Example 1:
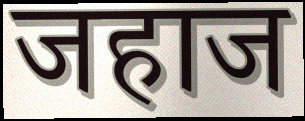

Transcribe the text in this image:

जहाज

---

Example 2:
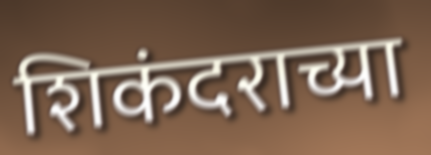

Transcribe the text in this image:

शिकंदराच्या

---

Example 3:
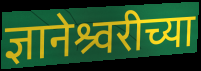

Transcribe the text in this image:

ज्ञानेश्र्वरीच्या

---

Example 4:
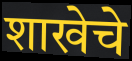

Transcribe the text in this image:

शाखेचे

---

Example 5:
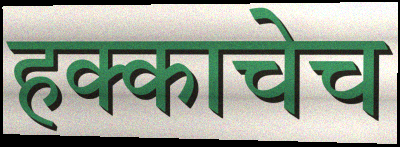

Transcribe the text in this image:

हक्काचेच